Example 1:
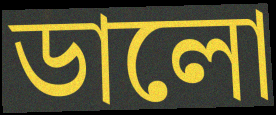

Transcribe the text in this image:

ডালো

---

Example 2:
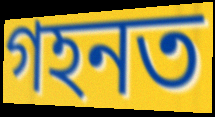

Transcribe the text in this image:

গহনত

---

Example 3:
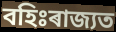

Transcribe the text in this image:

বহিঃৰাজ্যত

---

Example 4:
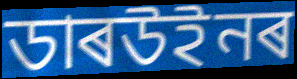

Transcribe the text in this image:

ডাৰউইনৰ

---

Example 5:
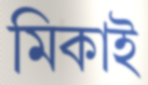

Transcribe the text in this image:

মিকাই